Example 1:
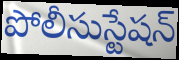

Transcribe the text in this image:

పోలీసుస్టేషన్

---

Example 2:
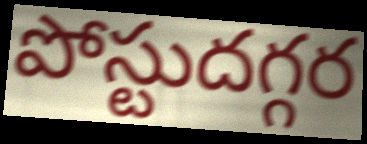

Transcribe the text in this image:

పోస్టుదగ్గర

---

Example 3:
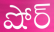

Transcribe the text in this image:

షోర్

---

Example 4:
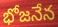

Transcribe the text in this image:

భోజనేన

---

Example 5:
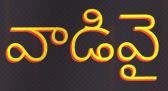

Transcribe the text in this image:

వాడివై